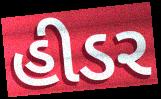
હીડર